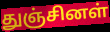
துஞ்சினள்